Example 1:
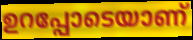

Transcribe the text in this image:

ഉറപ്പോടെയാണ്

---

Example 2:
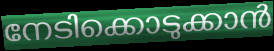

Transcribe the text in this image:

നേടിക്കൊടുക്കാൻ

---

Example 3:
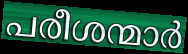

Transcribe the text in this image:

പരീശന്മാർ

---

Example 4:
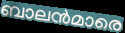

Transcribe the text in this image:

ബാലൻമാരെ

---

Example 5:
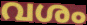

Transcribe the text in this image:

വശം